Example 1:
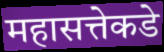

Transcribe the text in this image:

महासत्तेकडे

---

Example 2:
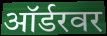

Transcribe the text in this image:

ऑर्डरवर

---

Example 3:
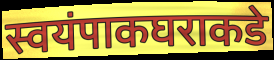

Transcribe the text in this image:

स्वयंपाकघराकडे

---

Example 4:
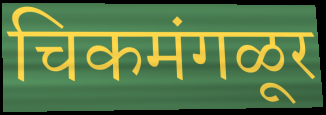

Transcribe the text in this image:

चिकमंगळूर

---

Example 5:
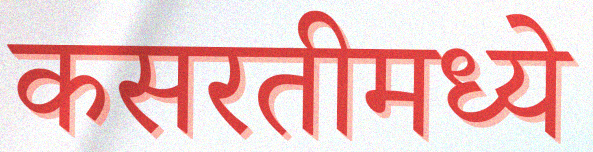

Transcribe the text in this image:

कसरतीमध्ये